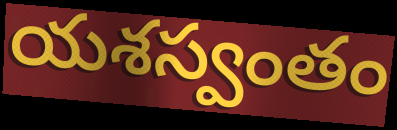
యశస్వంతం